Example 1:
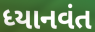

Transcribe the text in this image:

ધ્યાનવંત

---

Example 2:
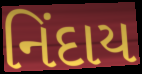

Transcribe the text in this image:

નિંદાય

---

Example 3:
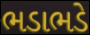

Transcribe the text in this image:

ભડાભડે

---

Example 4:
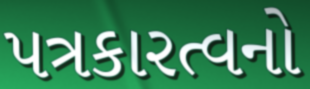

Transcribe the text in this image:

પત્રકારત્વનો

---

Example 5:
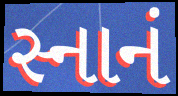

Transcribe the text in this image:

સ્નાનં